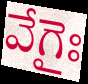
వేగైః